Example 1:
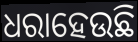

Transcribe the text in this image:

ଧରାହେଉଛି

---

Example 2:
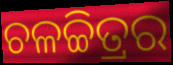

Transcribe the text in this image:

ଚଳଚ୍ଚିତ୍ରର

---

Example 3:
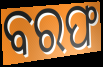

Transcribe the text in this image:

ବରଫ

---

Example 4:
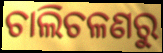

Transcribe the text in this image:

ଚାଲିଚଳଣରୁ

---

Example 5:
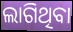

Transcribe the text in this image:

ଲାଗିଥିବା